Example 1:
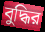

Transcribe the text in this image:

বুদ্ধির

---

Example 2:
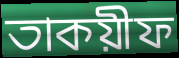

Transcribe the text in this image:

তাকয়ীফ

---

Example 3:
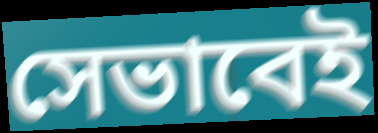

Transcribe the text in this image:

সেভাবেই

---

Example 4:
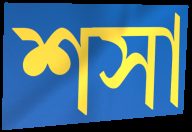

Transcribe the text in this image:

শসা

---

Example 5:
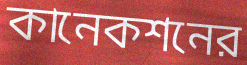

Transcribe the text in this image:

কানেকশনের